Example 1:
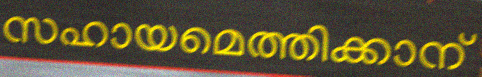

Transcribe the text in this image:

സഹായമെത്തിക്കാന്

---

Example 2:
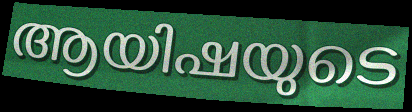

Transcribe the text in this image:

ആയിഷയുടെ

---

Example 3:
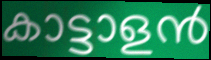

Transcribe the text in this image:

കാട്ടാളൻ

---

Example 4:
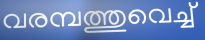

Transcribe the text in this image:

വരമ്പത്തുവെച്ച്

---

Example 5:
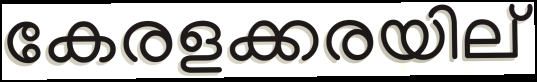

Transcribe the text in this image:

കേരളക്കരയില്